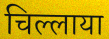
चिल्लाया